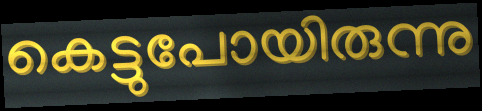
കെട്ടുപോയിരുന്നു